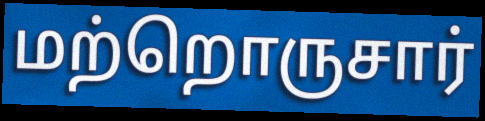
மற்றொருசார்